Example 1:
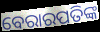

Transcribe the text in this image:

ବେରାରପତିଙ୍କ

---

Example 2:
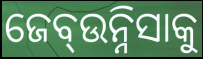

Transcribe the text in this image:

ଜେବ୍ଉନ୍ନିସାକୁ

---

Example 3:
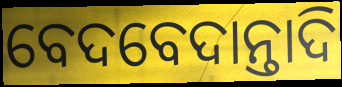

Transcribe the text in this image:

ବେଦବେଦାନ୍ତାଦି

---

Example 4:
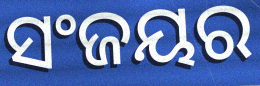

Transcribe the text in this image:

ସଂଜୟର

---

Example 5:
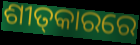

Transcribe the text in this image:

ଶୀତ୍‌କାରରେ